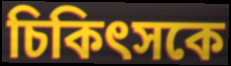
চিকিৎসকে